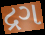
દ્રગ